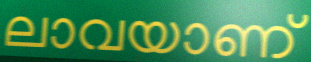
ലാവയാണ്